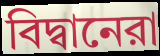
বিদ্বানেরা